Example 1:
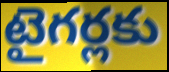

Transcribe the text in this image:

టైగర్లకు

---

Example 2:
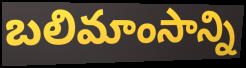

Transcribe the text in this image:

బలిమాంసాన్ని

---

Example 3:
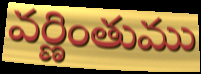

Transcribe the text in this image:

వర్ణింతుము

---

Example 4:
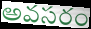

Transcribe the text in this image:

అవసరం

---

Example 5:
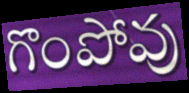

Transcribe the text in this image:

గొంపోవు